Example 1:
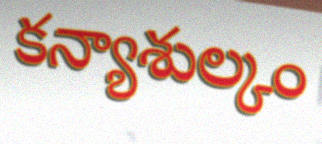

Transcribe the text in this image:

కన్యాశుల్కం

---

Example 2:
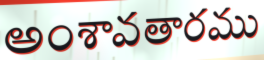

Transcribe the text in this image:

అంశావతారము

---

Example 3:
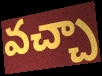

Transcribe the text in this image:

వచ్చా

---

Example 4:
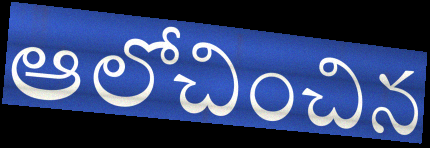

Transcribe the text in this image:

ఆలోచించిన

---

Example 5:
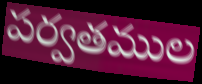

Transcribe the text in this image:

పర్వతముల